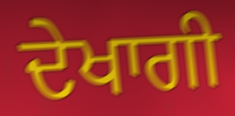
ਦੇਖਾਗੀ